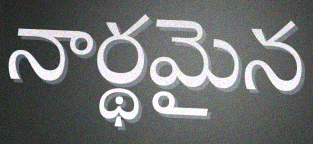
నార్థమైన